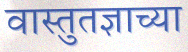
वास्तुतज्ञाच्या